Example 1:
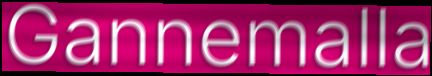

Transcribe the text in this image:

Gannemalla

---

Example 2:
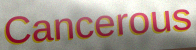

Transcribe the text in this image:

Cancerous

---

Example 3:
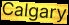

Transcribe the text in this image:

Calgary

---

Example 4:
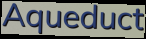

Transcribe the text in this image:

Aqueduct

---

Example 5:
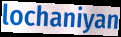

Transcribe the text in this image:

lochaniyan